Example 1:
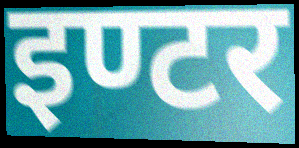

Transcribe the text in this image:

इण्टर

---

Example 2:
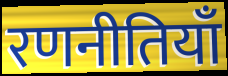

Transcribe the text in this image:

रणनीतियाँ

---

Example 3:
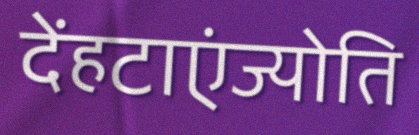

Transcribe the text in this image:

देंहटाएंज्योति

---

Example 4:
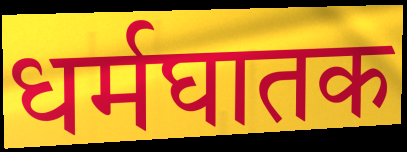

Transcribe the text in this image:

धर्मघातक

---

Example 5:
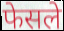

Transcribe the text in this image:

फेसले